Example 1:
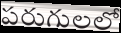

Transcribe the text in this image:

పరుగులలో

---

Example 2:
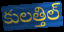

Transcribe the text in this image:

కులత్తిల్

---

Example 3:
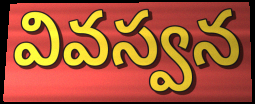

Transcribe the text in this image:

వివస్వన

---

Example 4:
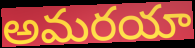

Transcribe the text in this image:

అమరయా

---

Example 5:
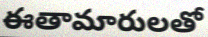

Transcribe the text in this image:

ఈతామారులతో